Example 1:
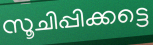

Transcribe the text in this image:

സൂചിപ്പിക്കട്ടെ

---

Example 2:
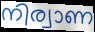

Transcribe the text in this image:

നിര്വാണ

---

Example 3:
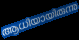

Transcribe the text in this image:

ആധിയായിരുന്നു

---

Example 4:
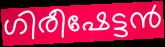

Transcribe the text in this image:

ഗിരീഷേട്ടൻ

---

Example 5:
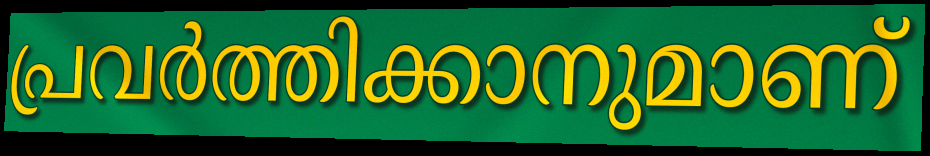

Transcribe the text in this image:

പ്രവർത്തിക്കാനുമാണ്